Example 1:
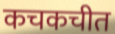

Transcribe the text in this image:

कचकचीत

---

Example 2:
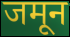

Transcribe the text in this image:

जमून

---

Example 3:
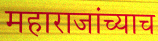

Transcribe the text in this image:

महाराजांच्याच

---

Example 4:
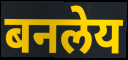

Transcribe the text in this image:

बनलेय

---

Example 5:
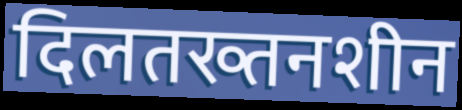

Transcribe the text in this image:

दिलतख्तनशीन